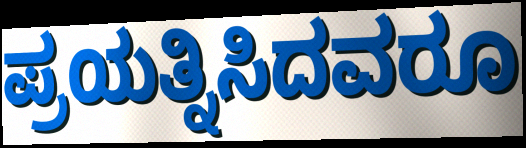
ಪ್ರಯತ್ನಿಸಿದವರೂ